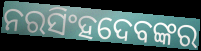
ନରସିଂହଦେବଙ୍କର